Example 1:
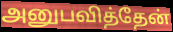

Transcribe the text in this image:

அனுபவித்தேன்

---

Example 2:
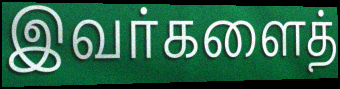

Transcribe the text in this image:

இவர்களைத்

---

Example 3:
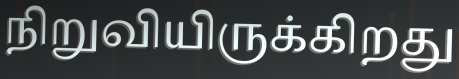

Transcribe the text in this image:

நிறுவியிருக்கிறது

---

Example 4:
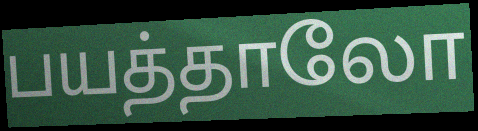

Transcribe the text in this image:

பயத்தாலோ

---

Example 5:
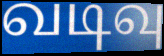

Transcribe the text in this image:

வடிவு